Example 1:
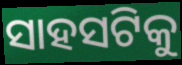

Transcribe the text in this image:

ସାହସଟିକୁ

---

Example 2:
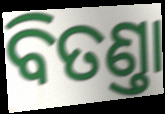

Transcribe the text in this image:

ବିତଣ୍ତା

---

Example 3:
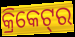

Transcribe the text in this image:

କ୍ରିକେଟ୍‌ର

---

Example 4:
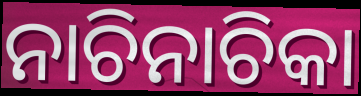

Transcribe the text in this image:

ନାଚିନାଚିକା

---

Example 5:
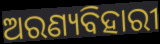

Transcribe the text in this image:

ଅରଣ୍ୟବିହାରୀ